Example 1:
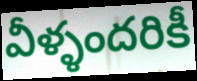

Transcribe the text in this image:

వీళ్ళందరికీ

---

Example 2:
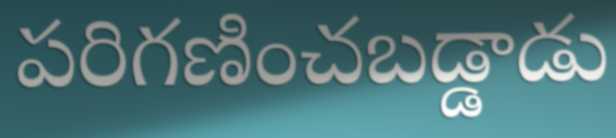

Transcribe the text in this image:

పరిగణించబడ్డాడు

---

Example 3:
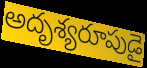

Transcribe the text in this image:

అదృశ్యరూపుడై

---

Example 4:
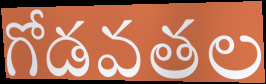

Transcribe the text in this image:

గోడవతల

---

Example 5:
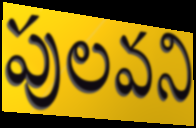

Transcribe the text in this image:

పులవని